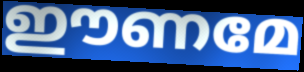
ഈണമേ